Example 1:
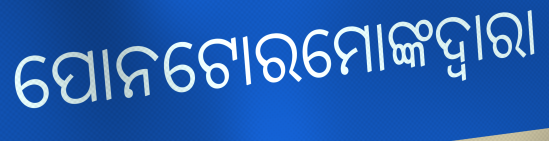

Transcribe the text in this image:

ପୋନଟୋରମୋଙ୍କଦ୍ୱାରା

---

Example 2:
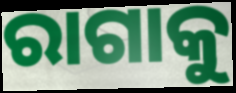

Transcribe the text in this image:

ରାଗାକୁ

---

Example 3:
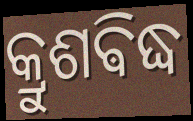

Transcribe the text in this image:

କ୍ରୁଶଵିଦ୍ଧ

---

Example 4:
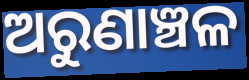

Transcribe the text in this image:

ଅରୁଣାଞ୍ଚଳ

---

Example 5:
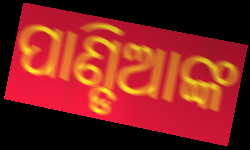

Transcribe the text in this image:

ପାଣ୍ଡିଆଙ୍କ